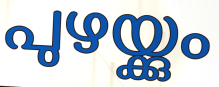
പുഴയ്ക്കും